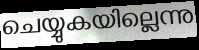
ചെയ്യുകയില്ലെന്നു